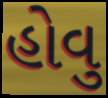
હોવુ